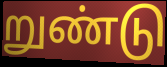
றுண்டு